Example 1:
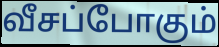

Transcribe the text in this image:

வீசப்போகும்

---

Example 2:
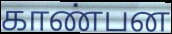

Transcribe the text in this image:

காண்பன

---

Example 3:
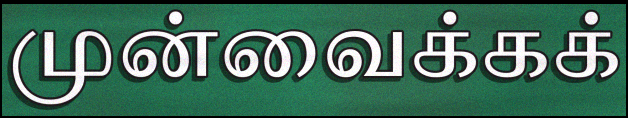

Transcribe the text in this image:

முன்வைக்கக்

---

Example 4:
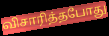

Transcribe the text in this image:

விசாரித்தபோது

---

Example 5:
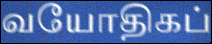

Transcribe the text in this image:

வயோதிகப்